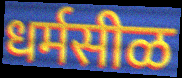
धर्मसीळ